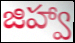
జిహ్వా